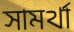
সামর্থা